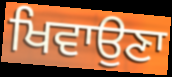
ਖਿਵਾਉਣਾ